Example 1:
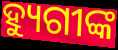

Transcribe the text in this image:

ହ୍ୟୁଗୀଙ୍କ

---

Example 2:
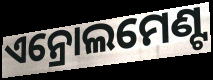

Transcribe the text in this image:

ଏନ୍ରୋଲମେଣ୍ଟ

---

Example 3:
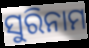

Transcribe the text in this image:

ସୁରିନାମ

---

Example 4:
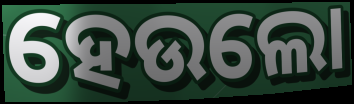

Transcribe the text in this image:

ହେଉଲୋ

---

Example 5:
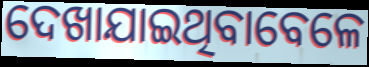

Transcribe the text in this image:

ଦେଖାଯାଇଥିବାବେଳେ